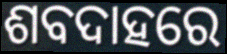
ଶବଦାହରେ